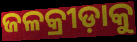
ଜଳକ୍ରୀଡ଼ାକୁ